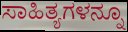
ಸಾಹಿತ್ಯಗಳನ್ನೂ